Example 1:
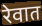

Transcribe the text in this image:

रेवात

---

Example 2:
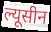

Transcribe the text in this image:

ल्यूसीन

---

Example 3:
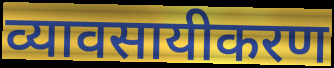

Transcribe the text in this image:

व्यावसायीकरण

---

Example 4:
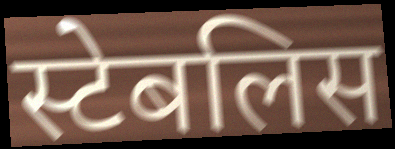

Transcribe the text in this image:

स्टेबलिस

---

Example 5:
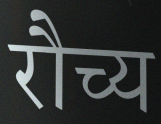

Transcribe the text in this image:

रौच्य